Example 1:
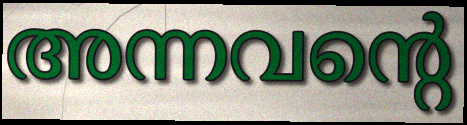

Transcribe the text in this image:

അന്നവന്റെ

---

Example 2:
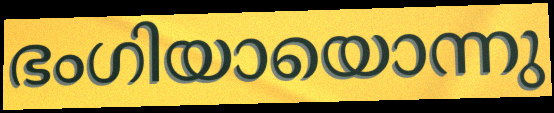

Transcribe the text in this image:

ഭംഗിയായൊന്നു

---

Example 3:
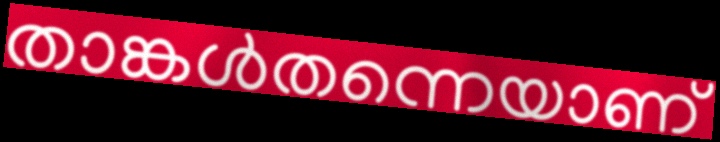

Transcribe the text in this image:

താങ്കൾതന്നെയാണ്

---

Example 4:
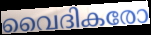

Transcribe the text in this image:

വൈദികരോ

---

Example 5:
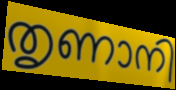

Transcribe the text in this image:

തൃണാനി